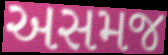
અસમજ